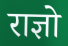
राज्ञो